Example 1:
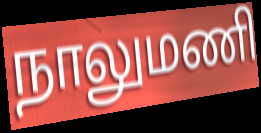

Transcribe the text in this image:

நாலுமணி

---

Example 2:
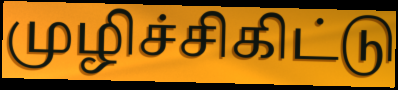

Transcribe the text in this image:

முழிச்சிகிட்டு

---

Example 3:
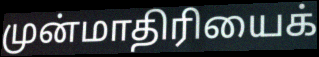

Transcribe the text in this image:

முன்மாதிரியைக்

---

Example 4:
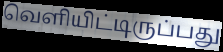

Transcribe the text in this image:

வெளியிட்டிருப்பது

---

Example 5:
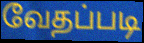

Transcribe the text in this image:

வேதப்படி